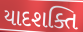
યાદશક્તિ